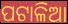
ପଟାଳିଆ